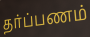
தர்ப்பணம்